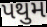
પથુમ